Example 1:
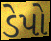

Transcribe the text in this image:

ડેપો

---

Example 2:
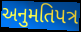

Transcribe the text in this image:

અનુમતિપત્ર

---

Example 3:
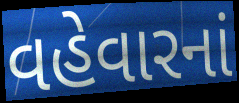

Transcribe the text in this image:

વહેવારનાં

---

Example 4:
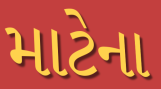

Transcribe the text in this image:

માટેના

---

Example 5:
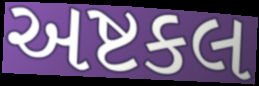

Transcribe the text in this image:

અષ્ટકલ